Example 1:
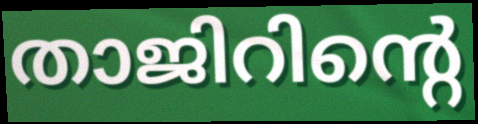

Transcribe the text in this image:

താജിറിന്റെ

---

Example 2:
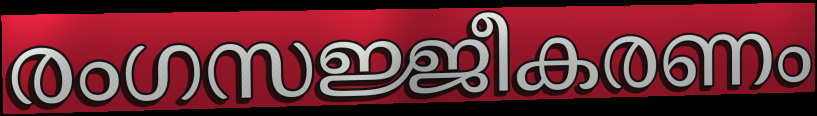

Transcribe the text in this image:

രംഗസജ്ജീകരണം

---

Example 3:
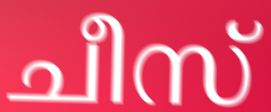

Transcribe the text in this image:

ചീസ്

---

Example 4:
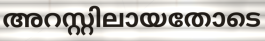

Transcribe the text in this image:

അറസ്റ്റിലായതോടെ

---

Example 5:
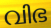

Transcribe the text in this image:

വിഭ